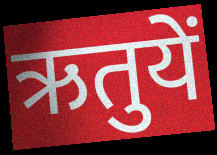
ऋतुयें